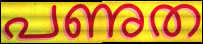
പണുത